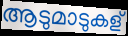
ആടുമാടുകള്